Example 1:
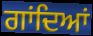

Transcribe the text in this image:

ਗਾਂਦਿਆਂ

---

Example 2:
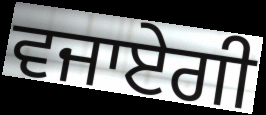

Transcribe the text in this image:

ਵਜਾਏਗੀ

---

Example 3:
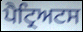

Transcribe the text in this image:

ਪੈਟ੍ਰਿਅਟਸ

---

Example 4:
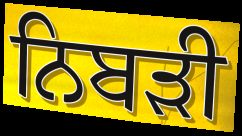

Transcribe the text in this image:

ਨਿਬੜੀ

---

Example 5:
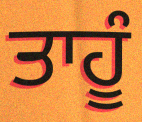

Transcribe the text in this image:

ਤਾਹੂੰ